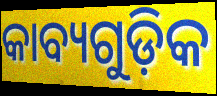
କାବ୍ୟଗୁଡ଼ିକ